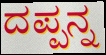
ದಪ್ಪನ್ನ